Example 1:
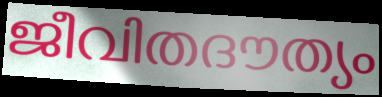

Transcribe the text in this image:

ജീവിതദൗത്യം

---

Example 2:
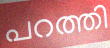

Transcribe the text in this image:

പറത്തി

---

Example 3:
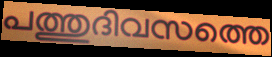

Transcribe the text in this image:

പത്തുദിവസത്തെ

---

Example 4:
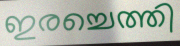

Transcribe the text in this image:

ഇരച്ചെത്തി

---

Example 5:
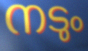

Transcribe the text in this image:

നടും